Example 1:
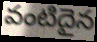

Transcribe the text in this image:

వంటిదైన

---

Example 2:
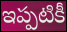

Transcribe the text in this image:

ఇప్పటికీ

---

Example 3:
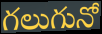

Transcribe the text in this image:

గలుగునో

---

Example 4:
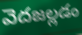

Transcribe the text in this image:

వెదజల్లడం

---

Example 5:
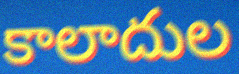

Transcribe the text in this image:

కాలాదుల